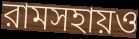
রামসহায়ও